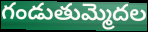
గండుతుమ్మెదల